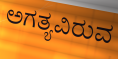
ಅಗತ್ಯವಿರುವ